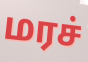
மரச்